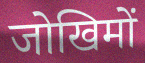
जोखिमों